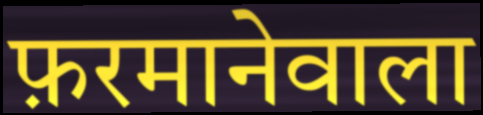
फ़रमानेवाला